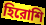
হিরোশি